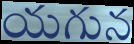
యగున